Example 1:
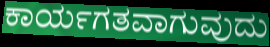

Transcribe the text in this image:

ಕಾರ್ಯಗತವಾಗುವುದು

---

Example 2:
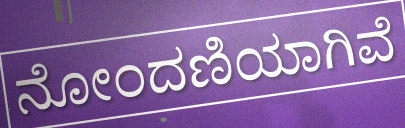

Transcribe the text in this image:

ನೋಂದಣಿಯಾಗಿವೆ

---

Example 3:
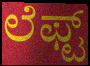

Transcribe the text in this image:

ಲೆಫ್ಟ್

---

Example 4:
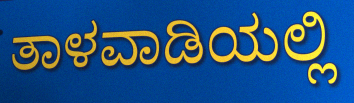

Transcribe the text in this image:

ತಾಳವಾಡಿಯಲ್ಲಿ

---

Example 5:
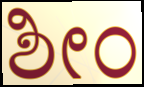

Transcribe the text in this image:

ಶೀಂ